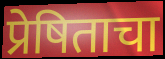
प्रेषिताचा